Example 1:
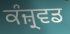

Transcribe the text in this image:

ਕੰਜ਼੍ਰਵਡ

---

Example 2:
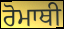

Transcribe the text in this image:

ਰੋਮਾਥੀ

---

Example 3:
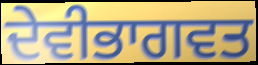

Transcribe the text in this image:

ਦੇਵੀਭਾਗਵਤ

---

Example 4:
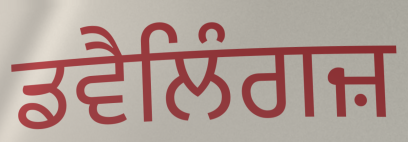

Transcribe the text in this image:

ਡਵੈਲਿੰਗਜ਼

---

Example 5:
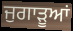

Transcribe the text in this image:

ਜੁਗਾੜੂਆਂ